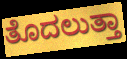
ತೊದಲುತ್ತಾ